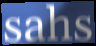
sahs